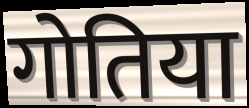
गोतिया